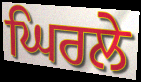
ਘਿਰਲੇ